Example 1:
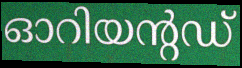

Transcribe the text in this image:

ഓറിയന്റഡ്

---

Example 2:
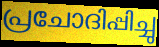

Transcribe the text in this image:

പ്രചോദിപ്പിച്ചു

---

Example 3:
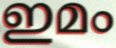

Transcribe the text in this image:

ഇമം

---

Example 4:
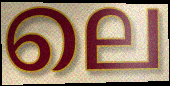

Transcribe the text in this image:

ലെ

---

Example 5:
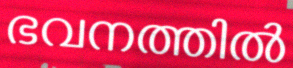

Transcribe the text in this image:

ഭവനത്തിൽ